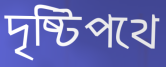
দৃষ্টিপথে